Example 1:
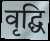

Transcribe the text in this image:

वृद्घि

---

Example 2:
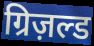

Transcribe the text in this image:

ग्रिज़ल्ड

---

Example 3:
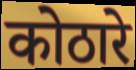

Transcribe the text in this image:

कोठारे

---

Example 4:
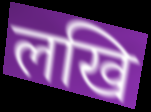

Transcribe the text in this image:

लखि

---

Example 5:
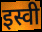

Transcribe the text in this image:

इस्वी